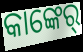
କାଙ୍କେର୍